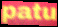
patu